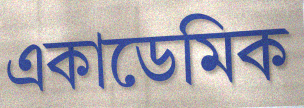
একাডেমিক